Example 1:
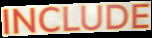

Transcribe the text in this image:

INCLUDE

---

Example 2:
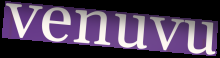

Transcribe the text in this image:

venuvu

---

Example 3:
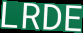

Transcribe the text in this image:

LRDE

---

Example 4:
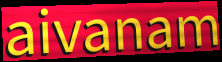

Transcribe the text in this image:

aivanam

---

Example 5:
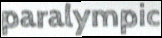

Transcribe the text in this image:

paralympic